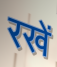
रखें